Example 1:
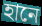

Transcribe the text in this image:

হানে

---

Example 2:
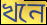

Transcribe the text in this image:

খনে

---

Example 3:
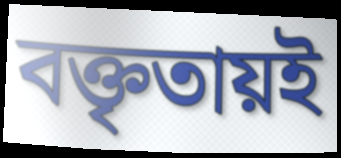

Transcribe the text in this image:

বক্তৃতায়ই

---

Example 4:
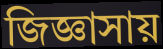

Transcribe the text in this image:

জিজ্ঞাসায়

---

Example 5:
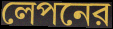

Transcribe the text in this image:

লেপনের